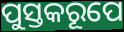
ପୁସ୍ତକରୂପେ